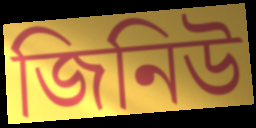
জিনিউ